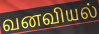
வனவியல்